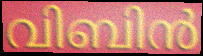
വിബിൻ